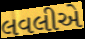
લવલીએ